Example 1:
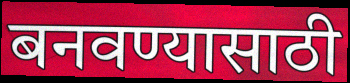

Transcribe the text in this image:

बनवण्यासाठी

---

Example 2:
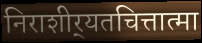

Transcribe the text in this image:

निराशीर्यतचित्तात्मा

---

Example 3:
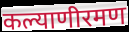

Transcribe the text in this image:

कल्याणीरमण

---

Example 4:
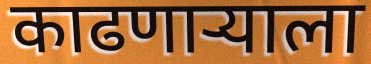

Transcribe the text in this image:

काढणार्‍याला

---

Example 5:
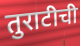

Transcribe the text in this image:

तुराटीची